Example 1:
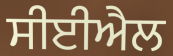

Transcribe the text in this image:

ਸੀਈਐਲ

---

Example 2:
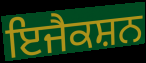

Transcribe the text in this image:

ਇਜੈਕਸ਼ਨ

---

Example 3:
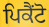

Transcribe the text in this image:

ਪਿਕੈਂਟੋ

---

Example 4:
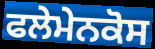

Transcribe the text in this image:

ਫਲੇਮੇਨਕੋਸ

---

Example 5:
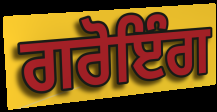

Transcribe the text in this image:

ਗਰੋਇੰਗ